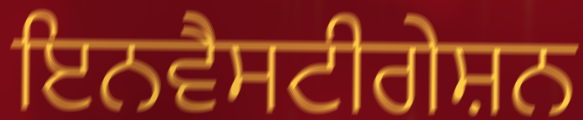
ਇਨਵੈਸਟੀਗੇਸ਼ਨ